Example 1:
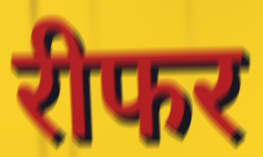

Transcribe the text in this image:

रीफर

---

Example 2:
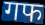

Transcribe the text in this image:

गफ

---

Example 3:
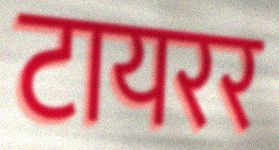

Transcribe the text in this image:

टायरर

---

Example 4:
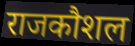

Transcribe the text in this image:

राजकौशल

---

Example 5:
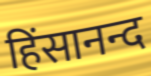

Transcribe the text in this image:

हिंसानन्द